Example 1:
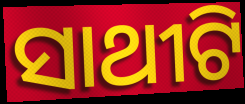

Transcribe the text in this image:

ସାଥୀଟି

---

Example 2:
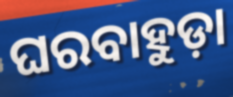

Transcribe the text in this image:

ଘରବାହୁଡ଼ା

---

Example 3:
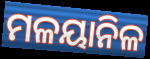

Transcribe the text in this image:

ମଳୟାନିଳ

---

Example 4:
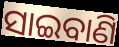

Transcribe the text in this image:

ସାଇବାଣି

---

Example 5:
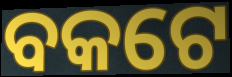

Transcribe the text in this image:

ବକଟେ